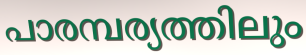
പാരമ്പര്യത്തിലും